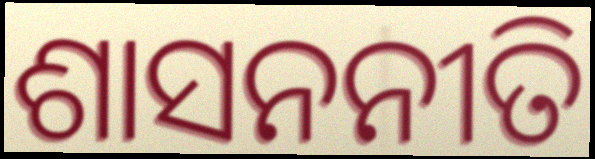
ଶାସନନୀତି